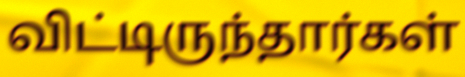
விட்டிருந்தார்கள்